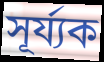
সূৰ্য্যক